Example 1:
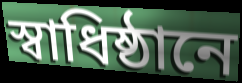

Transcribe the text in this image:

স্বাধিষ্ঠানে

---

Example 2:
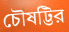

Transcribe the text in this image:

চৌষট্টির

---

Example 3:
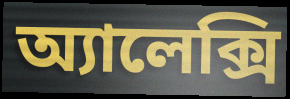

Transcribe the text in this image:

অ্যালেক্সি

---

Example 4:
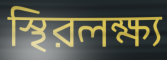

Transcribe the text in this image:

স্থিরলক্ষ্য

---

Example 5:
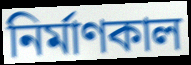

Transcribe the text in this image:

নির্মাণকাল